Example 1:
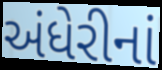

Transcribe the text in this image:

અંધેરીનાં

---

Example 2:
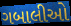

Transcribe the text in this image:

ગબાલીઓ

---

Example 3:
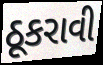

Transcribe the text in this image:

ઠૂકરાવી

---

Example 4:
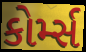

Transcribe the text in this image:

કોર્મ્સ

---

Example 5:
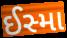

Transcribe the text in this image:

ઈસ્મા